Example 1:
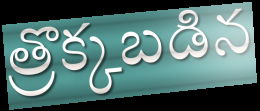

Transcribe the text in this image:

త్రొక్కబడిన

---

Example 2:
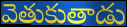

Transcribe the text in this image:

వెతుకుతాడు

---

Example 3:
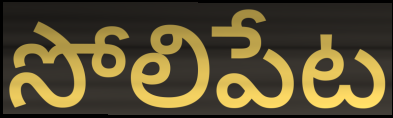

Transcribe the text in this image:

సోలిపేట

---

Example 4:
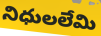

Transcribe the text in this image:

నిధులలేమి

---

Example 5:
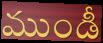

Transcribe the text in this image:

ముండీ